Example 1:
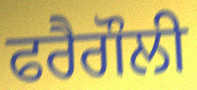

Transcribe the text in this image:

ਫਰੈਗੌਲੀ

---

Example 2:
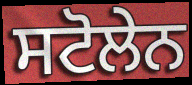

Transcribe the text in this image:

ਸਟੋਲੇਨ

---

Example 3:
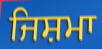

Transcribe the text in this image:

ਜਿਸ਼ਮਾ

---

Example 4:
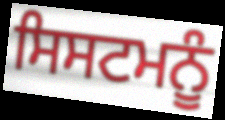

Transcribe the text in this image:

ਸਿਸਟਮਨੂੰ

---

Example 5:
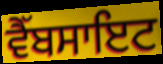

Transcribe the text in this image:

ਵੈੱਬਸਾਇਟ